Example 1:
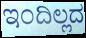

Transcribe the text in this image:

ಇಂದಿಲ್ಲದ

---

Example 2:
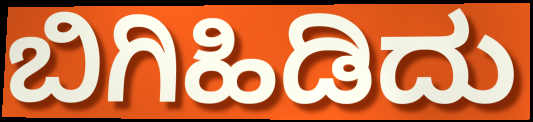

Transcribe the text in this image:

ಬಿಗಿಹಿಡಿದು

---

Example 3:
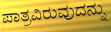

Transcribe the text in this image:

ಪಾತ್ರವಿರುವುದನ್ನು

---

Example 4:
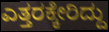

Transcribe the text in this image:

ಎತ್ತರಕ್ಕೇರಿದ್ದು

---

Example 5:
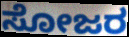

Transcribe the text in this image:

ಸೋಜರ